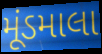
મૂંડમાલા